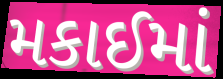
મકાઈમાં